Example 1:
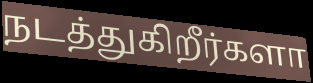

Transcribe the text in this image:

நடத்துகிறீர்களா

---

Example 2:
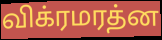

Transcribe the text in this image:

விக்ரமரத்ன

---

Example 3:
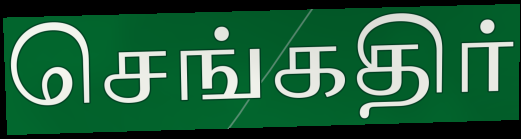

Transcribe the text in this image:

செங்கதிர்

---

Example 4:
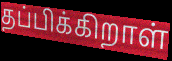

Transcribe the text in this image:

தப்பிக்கிறாள்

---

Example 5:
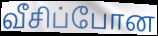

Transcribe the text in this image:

வீசிப்போன